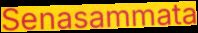
Senasammata